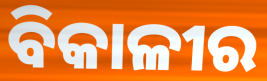
ବିକାଳୀର